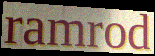
ramrod